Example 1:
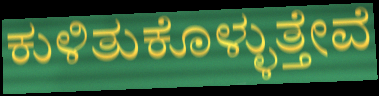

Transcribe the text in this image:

ಕುಳಿತುಕೊಳ್ಳುತ್ತೇವೆ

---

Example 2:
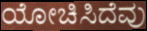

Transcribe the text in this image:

ಯೋಚಿಸಿದೆವು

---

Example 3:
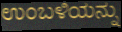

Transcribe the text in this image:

ಉಂಬಳಿಯನ್ನು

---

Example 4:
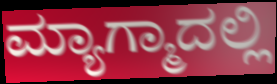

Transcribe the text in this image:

ಮ್ಯಾಗ್ಮಾದಲ್ಲಿ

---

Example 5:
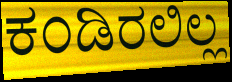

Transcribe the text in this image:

ಕಂಡಿರಲಿಲ್ಲ